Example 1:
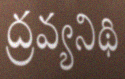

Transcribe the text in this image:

ద్రవ్యనిథి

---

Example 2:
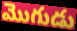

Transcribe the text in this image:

మొగుడు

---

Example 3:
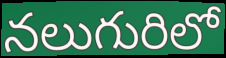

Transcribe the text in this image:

నలుగురిలో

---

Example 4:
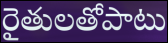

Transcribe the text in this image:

రైతులతోపాటు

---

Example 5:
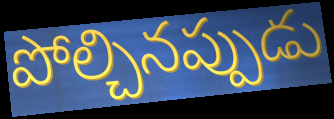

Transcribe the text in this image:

పోల్చినప్పుడు